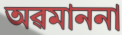
অৱমাননা